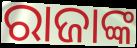
ରାଜାଙ୍କ